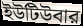
ইউটিউবার